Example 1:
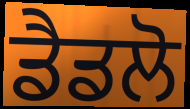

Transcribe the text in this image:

ਡੈਡਲੋ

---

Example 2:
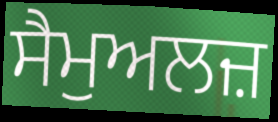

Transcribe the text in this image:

ਸੈਮੁਅਲਜ਼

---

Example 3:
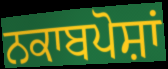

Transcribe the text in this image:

ਨਕਾਬਪੋਸ਼ਾਂ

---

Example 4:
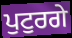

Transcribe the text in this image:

ਪੁਟੁਰਗੇ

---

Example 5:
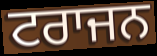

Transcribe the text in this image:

ਟਰਾਜਨ